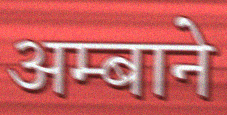
अम्बाने